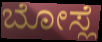
ಬೋಸ್ಲೆ